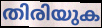
തിരിയുക